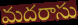
మదరాసు